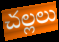
చల్లలు